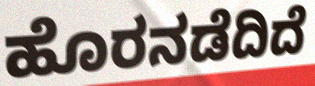
ಹೊರನಡೆದಿದೆ